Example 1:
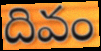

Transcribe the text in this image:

దివం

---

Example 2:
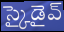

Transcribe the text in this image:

స్కైడైవ్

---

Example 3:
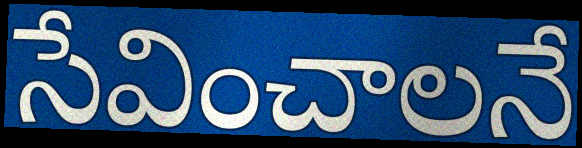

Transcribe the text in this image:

సేవించాలనే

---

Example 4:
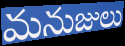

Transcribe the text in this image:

మనుజులు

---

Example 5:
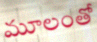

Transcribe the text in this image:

మూలంతో